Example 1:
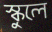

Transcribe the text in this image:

স্কুলে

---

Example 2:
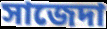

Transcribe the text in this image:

সাজেদা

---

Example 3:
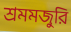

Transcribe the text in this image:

শ্রমমজুরি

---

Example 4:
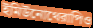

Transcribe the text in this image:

ইমিউনোথেরাপিও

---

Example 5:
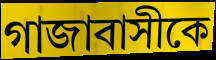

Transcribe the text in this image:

গাজাবাসীকে